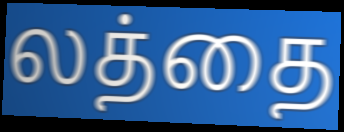
லத்தை